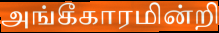
அங்கீகாரமின்றி